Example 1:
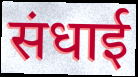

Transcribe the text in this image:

संधाई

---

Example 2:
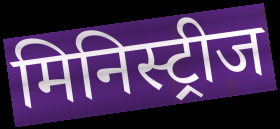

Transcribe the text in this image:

मिनिस्ट्रीज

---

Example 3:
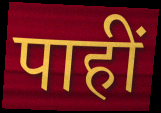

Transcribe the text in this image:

पाहीं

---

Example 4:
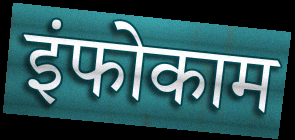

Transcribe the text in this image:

इंफोकाम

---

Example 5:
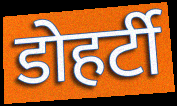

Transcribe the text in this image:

डोहर्टी